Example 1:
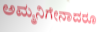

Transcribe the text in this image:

ಅಮ್ಮನಿಗೇನಾದರೂ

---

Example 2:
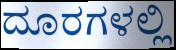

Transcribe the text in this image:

ದೂರಗಳಲ್ಲಿ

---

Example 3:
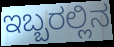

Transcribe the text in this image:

ಇಬ್ಬರಲ್ಲಿನ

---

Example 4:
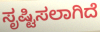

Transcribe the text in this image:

ಸೃಷ್ಟಿಸಲಾಗಿದೆ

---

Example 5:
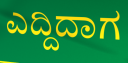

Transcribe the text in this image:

ಎದ್ದಿದಾಗ